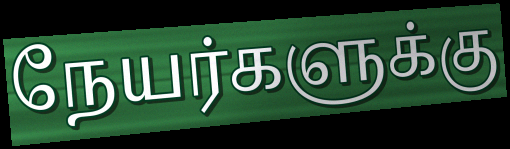
நேயர்களுக்கு